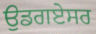
ਉਡਗਏਸਰ